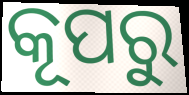
କୂପରୁ